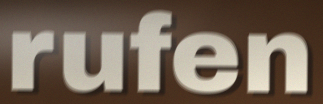
rufen